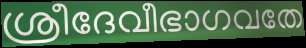
ശ്രീദേവീഭാഗവതേ